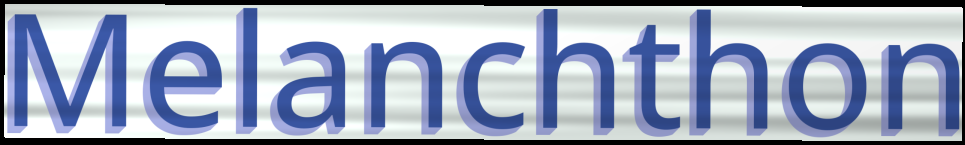
Melanchthon